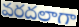
వరదలాగా